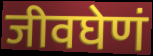
जीवघेणं